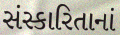
સંસ્કારિતાનાં